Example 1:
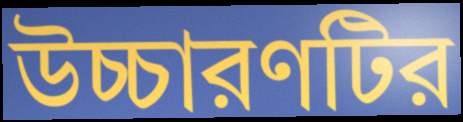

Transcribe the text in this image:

উচ্চারণটির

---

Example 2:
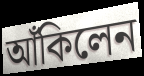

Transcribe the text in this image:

আঁকিলেন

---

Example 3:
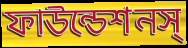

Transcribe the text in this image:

ফাউন্ডেশনস্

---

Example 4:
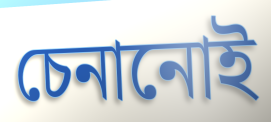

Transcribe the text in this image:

চেনানোই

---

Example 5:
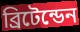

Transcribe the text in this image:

ব্রিটেন্ডেন